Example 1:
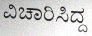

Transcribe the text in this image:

ವಿಚಾರಿಸಿದ್ದ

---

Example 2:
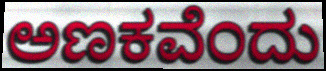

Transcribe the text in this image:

ಅಣಕವೆಂದು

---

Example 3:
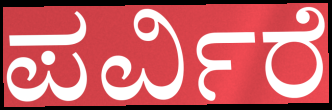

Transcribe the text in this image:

ಪರ್ವಿರೆ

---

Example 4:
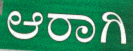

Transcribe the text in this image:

ಆರಾಗಿ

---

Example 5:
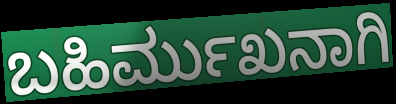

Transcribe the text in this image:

ಬಹಿರ್ಮುಖನಾಗಿ